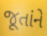
જૂતાંને